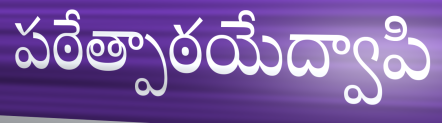
పఠేత్పాఠయేద్వాపి